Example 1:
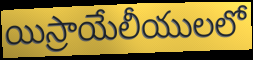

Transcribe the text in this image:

యిస్రాయేలీయులలో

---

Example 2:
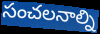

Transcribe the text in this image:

సంచలనాల్ని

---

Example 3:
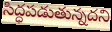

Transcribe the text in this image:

సిద్ధపడుతున్నదని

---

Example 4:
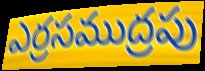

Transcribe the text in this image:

ఎర్రసముద్రపు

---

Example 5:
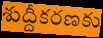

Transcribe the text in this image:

శుద్దీకరణకు